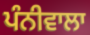
ਪੰਨੀਵਾਲਾ